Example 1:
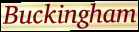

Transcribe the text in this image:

Buckingham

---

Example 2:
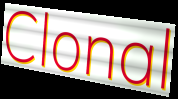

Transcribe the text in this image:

Clonal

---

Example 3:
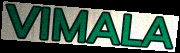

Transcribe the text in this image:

VIMALA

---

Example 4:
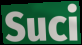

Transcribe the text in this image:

Suci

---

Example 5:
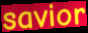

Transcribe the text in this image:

savior